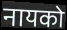
नायको